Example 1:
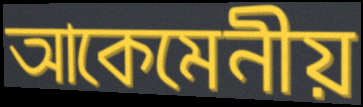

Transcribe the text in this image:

আকেমেনীয়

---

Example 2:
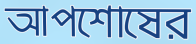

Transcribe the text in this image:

আপশোষের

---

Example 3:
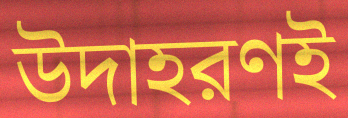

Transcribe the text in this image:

উদাহরণই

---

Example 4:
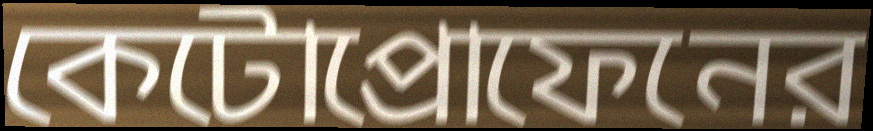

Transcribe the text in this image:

কেটোপ্রোফেনের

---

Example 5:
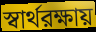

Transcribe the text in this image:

স্বার্থরক্ষায়